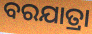
ବରଯାତ୍ରା